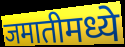
जमातीमध्ये